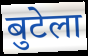
बुटेला